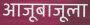
आजूबाजूला